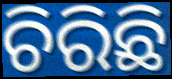
ଚିରିଛି